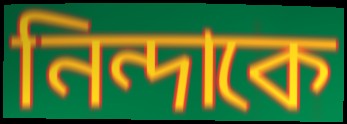
নিন্দাকে